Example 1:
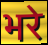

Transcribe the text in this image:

भरे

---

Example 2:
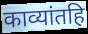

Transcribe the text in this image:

काव्यांतहि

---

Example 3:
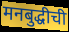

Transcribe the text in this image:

मनबुद्धीची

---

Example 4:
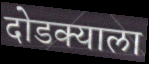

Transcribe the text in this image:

दोडक्याला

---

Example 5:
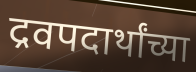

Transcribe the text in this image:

द्रवपदार्थांच्या